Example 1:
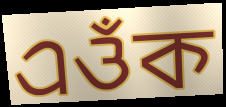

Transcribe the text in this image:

এওঁক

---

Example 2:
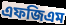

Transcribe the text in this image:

এফজিএম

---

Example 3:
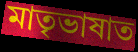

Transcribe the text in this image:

মাতৃভাষাত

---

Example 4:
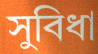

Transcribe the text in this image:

সুবিধা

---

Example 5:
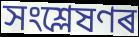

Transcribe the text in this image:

সংশ্লেষণৰ